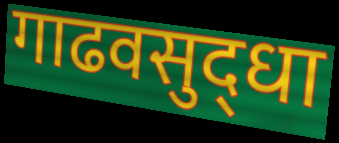
गाढवसुद्धा